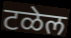
टळेल